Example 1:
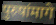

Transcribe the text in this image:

पुरुषांमागे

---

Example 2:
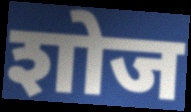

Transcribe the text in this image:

शोज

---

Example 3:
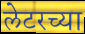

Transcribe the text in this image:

लेटरच्या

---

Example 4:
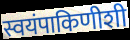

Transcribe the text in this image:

स्वयंपाकिणीशी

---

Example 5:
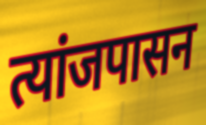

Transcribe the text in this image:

त्यांजपासन